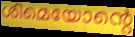
ശിമെയോന്റെ